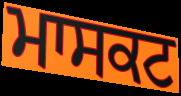
ਮਾਸਕਟ